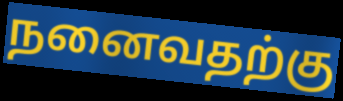
நனைவதற்கு